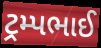
ટ્રમ્પભાઈ